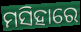
ମସିହାରେ